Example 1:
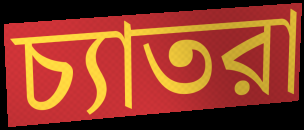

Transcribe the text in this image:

চ্যাতরা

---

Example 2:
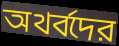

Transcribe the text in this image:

অথর্বদের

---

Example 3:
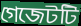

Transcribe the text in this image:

গেজেটটি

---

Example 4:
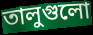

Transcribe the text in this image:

তালুগুলো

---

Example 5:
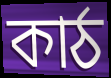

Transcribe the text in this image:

কাঠ